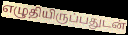
எழுதியிருப்பதுடன்